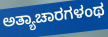
ಅತ್ಯಾಚಾರಗಳಂಥ